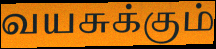
வயசுக்கும்